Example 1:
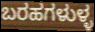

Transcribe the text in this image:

ಬರಹಗಳುಳ್ಳ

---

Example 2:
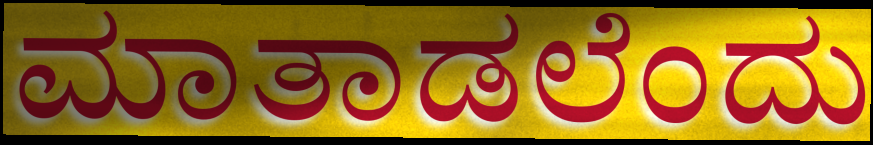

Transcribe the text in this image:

ಮಾತಾಡಲೆಂದು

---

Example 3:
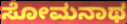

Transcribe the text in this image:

ಸೋಮನಾಥ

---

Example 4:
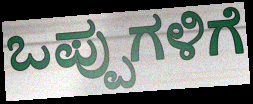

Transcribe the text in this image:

ಒಪ್ಪುಗಳಿಗೆ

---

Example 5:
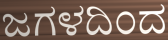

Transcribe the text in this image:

ಜಗಳದಿಂದ